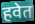
हवेत